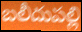
బలీదుపల్లి